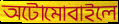
অটোমোবাইলে